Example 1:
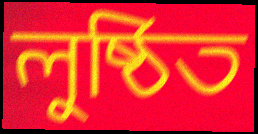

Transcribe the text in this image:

লুষ্ঠিত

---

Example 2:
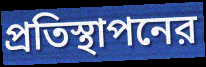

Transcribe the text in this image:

প্রতিস্থাপনের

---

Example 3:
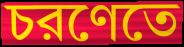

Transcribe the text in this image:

চরণেতে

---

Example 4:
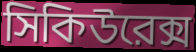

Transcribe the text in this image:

সিকিউরেক্স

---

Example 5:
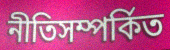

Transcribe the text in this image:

নীতিসম্পর্কিত